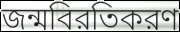
জন্মবিরতিকরণ